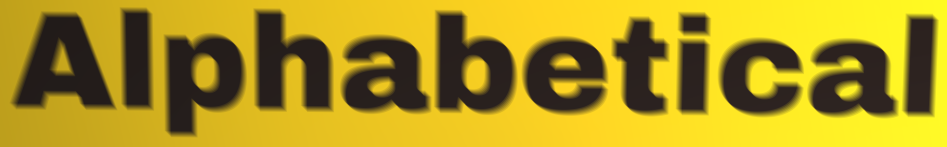
Alphabetical